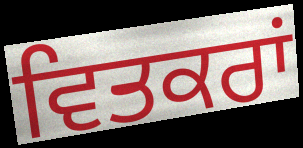
ਵਿਤਕਰਾਂ